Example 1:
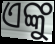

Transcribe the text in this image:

ଏଙ୍କୁ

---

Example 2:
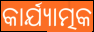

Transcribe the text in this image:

କାର୍ଯ୍ୟାତ୍ମକ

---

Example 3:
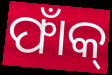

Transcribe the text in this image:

ଫାଁକ୍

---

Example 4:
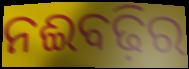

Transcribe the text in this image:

ନଈବଢ଼ିର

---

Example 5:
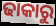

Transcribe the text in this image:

ଢାକାରୁ